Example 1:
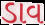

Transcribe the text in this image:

ડાવ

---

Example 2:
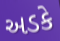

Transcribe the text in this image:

અડકે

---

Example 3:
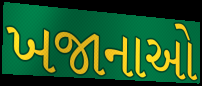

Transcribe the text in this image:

ખજાનાઓ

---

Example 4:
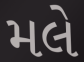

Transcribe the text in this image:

મલે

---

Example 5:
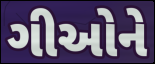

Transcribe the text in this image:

ગીઓને